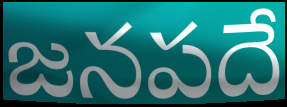
జనపదే